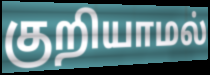
குறியாமல்